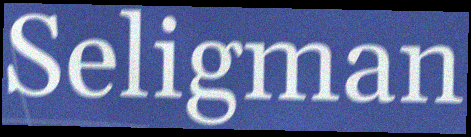
Seligman